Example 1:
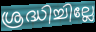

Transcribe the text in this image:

ശ്രദ്ധിച്ചില്ലേ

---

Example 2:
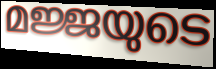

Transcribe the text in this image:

മജ്ജയുടെ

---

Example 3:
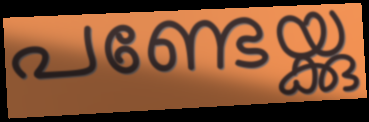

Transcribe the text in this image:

പണ്ടേയ്ക്കു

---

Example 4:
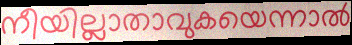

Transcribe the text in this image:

നീയില്ലാതാവുകയെന്നാൽ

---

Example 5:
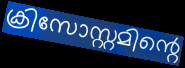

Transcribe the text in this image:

ക്രിസോസ്റ്റമിന്റെ